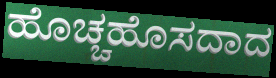
ಹೊಚ್ಚಹೊಸದಾದ